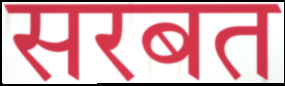
सरबत